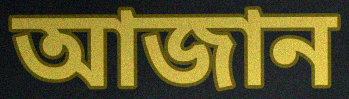
আজান